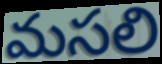
మసలి